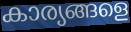
കാര്യങ്ങളെ